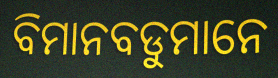
ବିମାନବଡୁମାନେ